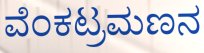
ವೆಂಕಟ್ರಮಣನ